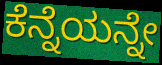
ಕೆನ್ನೆಯನ್ನೇ